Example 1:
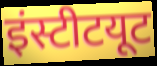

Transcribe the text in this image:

इंस्टीटयूट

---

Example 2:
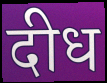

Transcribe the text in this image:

दीध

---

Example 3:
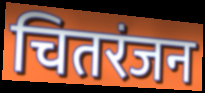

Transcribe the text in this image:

चितरंजन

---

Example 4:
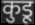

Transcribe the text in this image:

कुडू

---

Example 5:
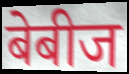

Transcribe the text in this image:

बेबीज